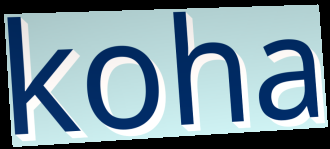
koha